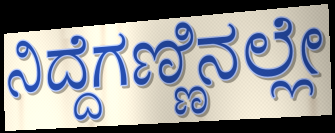
ನಿದ್ದೆಗಣ್ಣಿನಲ್ಲೇ